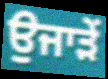
ਉਜਾੜੇਂ